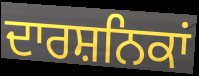
ਦਾਰਸ਼ਨਿਕਾਂ